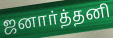
ஜனார்த்தனி